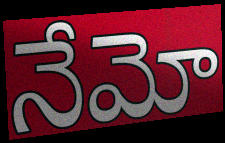
నేమో